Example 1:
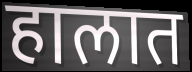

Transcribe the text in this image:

हालात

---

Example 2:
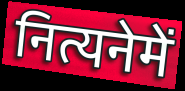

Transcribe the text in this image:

नित्यनेमें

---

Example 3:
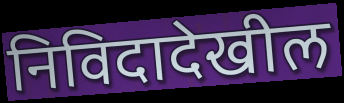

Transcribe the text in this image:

निविदादेखील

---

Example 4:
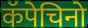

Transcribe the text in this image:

कॅपेचिनो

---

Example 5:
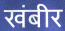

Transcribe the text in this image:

खंबीर